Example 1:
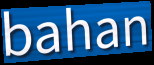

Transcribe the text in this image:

bahan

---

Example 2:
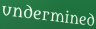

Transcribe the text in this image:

undermined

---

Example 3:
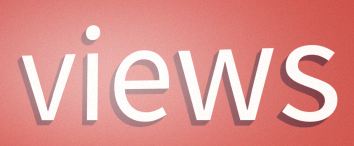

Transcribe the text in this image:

views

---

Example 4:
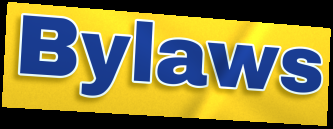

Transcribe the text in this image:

Bylaws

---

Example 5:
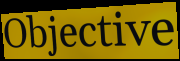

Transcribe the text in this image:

Objective